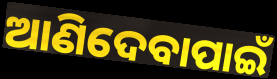
ଆଣିଦେବାପାଇଁ